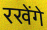
रखेंगे